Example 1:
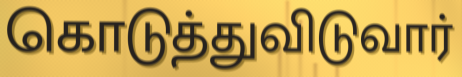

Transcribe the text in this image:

கொடுத்துவிடுவார்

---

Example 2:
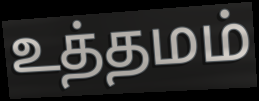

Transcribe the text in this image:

உத்தமம்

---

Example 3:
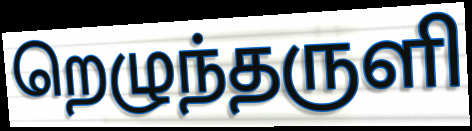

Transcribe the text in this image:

றெழுந்தருளி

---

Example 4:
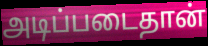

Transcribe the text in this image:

அடிப்படைதான்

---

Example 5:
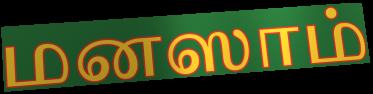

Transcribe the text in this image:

மனஸாம்